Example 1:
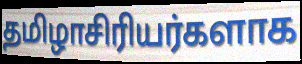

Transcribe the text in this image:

தமிழாசிரியர்களாக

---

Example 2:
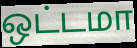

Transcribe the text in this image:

ஒட்டமா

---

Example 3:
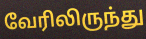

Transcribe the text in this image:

வேரிலிருந்து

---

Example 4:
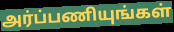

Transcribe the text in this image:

அர்ப்பணியுங்கள்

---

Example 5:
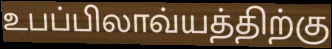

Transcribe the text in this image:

உபப்பிலாவ்யத்திற்கு